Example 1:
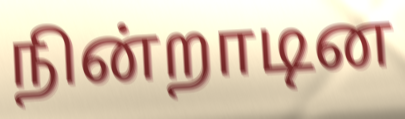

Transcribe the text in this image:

நின்றாடின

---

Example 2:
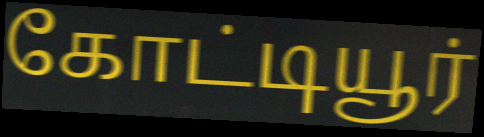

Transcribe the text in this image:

கோட்டியூர்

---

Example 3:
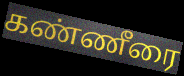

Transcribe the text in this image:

கண்ணீரை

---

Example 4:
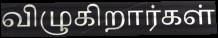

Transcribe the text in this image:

விழுகிறார்கள்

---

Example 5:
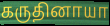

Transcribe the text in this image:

கருதினாயா